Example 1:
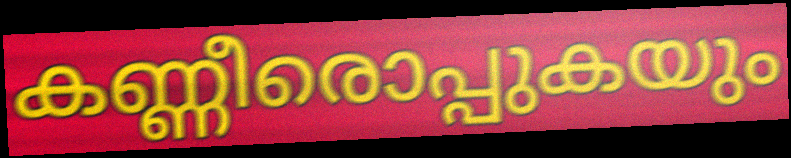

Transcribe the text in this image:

കണ്ണീരൊപ്പുകയും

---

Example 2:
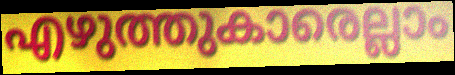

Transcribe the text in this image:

എഴുത്തുകാരെല്ലാം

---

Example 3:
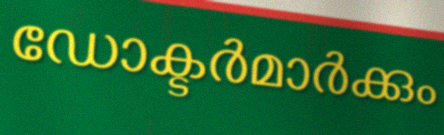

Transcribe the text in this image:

ഡോക്ടർമാർക്കും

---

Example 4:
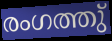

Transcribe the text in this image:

രംഗത്തു്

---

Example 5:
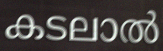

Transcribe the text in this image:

കടലാൽ